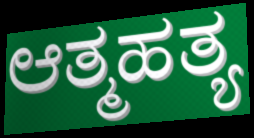
ಆತ್ಮಹತ್ಯ